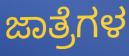
ಜಾತ್ರೆಗಳ